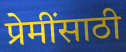
प्रेमींसाठी